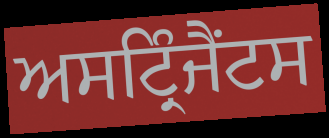
ਅਸਟ੍ਰਿੰਜੈਂਟਸ